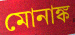
মোনাঙ্ক